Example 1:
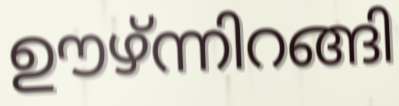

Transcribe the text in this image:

ഊഴ്ന്നിറങ്ങി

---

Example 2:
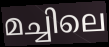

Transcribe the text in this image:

മച്ചിലെ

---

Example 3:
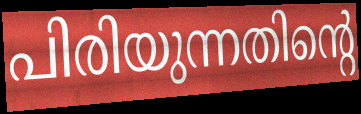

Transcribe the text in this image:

പിരിയുന്നതിന്റെ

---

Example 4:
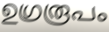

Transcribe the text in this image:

ഉഗ്രരൂപം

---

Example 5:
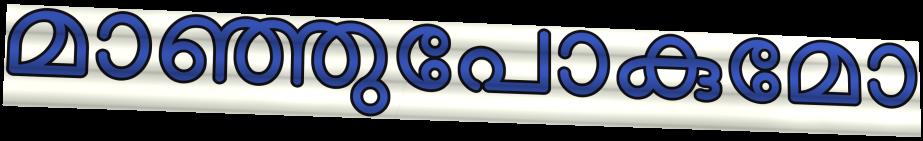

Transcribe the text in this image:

മാഞ്ഞുപോകുമോ